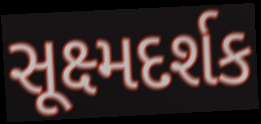
સૂક્ષ્મદર્શક